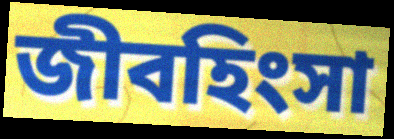
জীবহিংসা